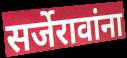
सर्जेरावांना